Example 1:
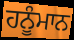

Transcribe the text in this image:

ਹਨੂੰਮਾਨ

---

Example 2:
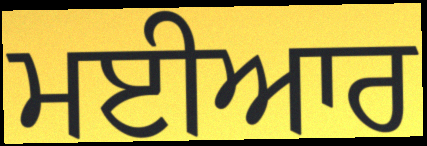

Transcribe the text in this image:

ਮਈਆਰ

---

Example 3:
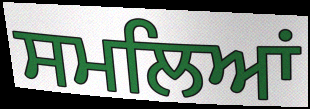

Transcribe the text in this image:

ਸਮਲਿਆਂ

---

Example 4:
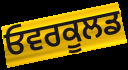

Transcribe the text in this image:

ਓਵਰਕੂਲਡ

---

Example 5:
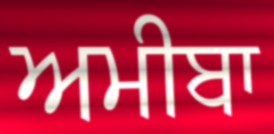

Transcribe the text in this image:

ਅਮੀਬਾ